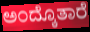
ಅಂದ್ಕೊತಾರೆ